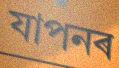
যাপনৰ